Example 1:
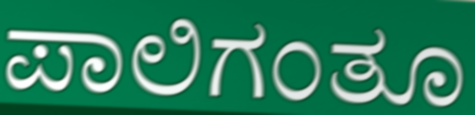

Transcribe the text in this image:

ಪಾಲಿಗಂತೂ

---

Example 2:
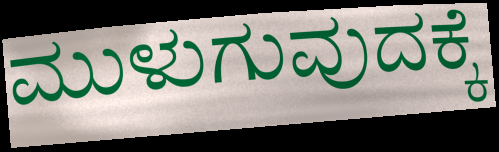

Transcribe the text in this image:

ಮುಳುಗುವುದಕ್ಕೆ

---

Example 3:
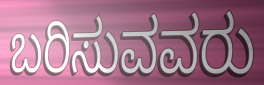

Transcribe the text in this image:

ಬರಿಸುವವರು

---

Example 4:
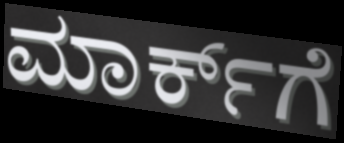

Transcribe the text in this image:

ಮಾರ್ಕ್‌ಗೆ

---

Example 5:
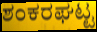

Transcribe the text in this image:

ಶಂಕರಘಟ್ಟ